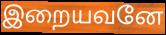
இறையவனே